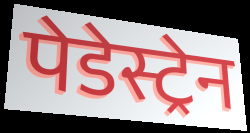
पेडेस्ट्रेन